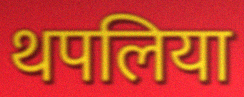
थपलिया